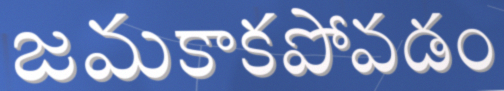
జమకాకపోవడం